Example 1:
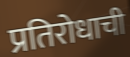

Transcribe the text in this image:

प्रतिरोधाची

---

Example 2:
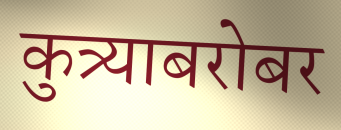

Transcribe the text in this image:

कुत्र्याबरोबर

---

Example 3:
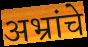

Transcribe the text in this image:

अभ्रांचे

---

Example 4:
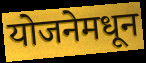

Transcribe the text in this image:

योजनेमधून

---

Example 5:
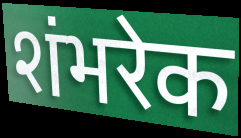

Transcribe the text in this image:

शंभरेक